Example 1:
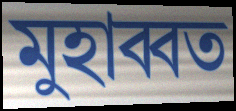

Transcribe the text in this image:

মুহাব্বত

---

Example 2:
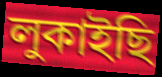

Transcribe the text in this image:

লুকাইছি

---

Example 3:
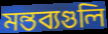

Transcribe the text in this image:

মন্তব্যগুলি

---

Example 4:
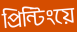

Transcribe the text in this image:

প্রিন্টিংয়ে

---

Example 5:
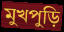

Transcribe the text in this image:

মুখপুড়ি